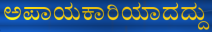
ಅಪಾಯಕಾರಿಯಾದದ್ದು